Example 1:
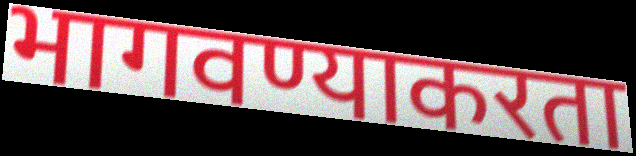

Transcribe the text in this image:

भागवण्याकरता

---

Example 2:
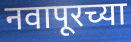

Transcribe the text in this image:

नवापूरच्या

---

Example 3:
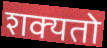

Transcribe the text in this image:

शक्‍यतो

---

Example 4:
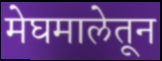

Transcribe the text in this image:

मेघमालेतून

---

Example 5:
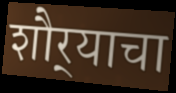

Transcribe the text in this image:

शौर्याचा